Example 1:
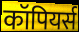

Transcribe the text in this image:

कॉपियर्स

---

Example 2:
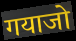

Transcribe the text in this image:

गयाजो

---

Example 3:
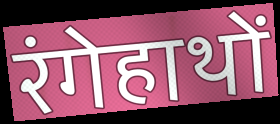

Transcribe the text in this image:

रंगेहाथों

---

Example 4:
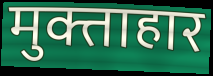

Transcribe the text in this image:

मुक्ताहार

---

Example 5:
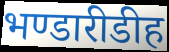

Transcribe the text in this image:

भण्डारीडीह